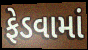
ફેડવામાં